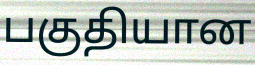
பகுதியான